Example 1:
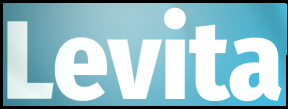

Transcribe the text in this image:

Levita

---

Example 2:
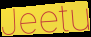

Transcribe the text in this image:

Jeetu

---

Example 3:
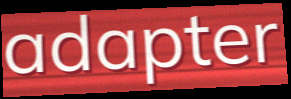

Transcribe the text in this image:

adapter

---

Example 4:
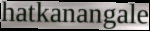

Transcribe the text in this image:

hatkanangale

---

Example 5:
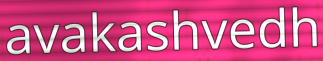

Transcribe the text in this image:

avakashvedh